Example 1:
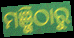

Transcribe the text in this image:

ମଞ୍ଜିଠାରୁ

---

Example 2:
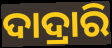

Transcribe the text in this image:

ଦାଦ୍ରାରି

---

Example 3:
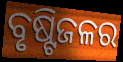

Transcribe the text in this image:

ବୃଷ୍ଟିଜଳର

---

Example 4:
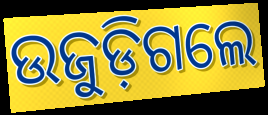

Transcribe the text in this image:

ଉଜୁଡ଼ିଗଲେ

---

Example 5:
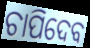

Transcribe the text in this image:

ଚାପିଦେବ